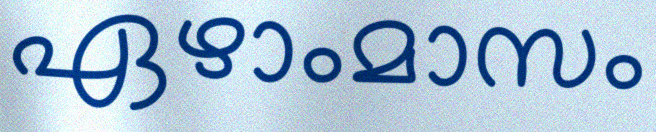
ഏഴാംമാസം